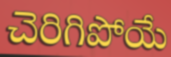
చెరిగిపోయే